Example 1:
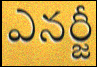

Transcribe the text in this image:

ఎనర్జీ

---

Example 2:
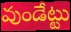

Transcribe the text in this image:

వుండేట్టు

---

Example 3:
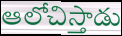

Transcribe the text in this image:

ఆలోచిస్తాడు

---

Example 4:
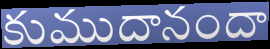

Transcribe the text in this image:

కుముదానందా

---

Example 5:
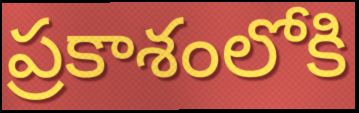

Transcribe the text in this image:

ప్రకాశంలోకి